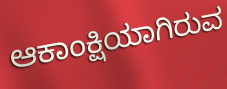
ಆಕಾಂಕ್ಷಿಯಾಗಿರುವ